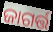
ଜାଗର୍ତ୍ତ